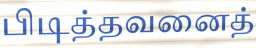
பிடித்தவனைத்